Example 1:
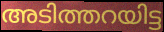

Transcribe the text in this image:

അടിത്തറയിട്ട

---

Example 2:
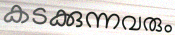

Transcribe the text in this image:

കടക്കുന്നവരും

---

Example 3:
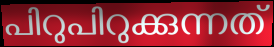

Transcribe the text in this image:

പിറുപിറുക്കുന്നത്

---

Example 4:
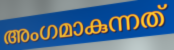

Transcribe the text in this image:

അംഗമാകുന്നത്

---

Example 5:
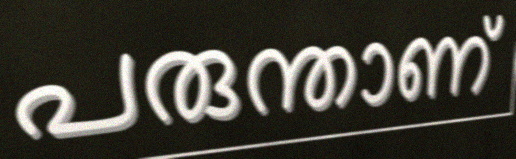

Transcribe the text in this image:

പരുന്താണ്